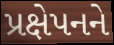
પ્રક્ષેપનને